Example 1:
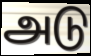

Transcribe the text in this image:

அடு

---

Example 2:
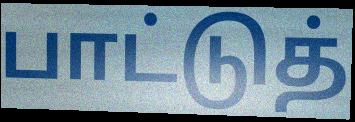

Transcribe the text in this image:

பாட்டுத்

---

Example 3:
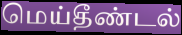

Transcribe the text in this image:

மெய்தீண்டல்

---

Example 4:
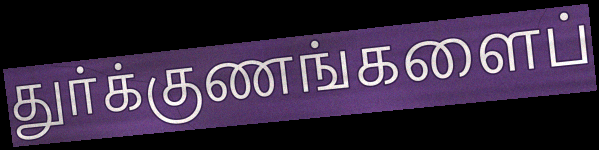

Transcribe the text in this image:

துர்க்குணங்களைப்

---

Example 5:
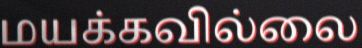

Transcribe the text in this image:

மயக்கவில்லை